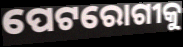
ପେଟରୋଗୀକୁ